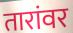
तारांवर